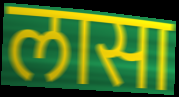
लासा